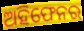
ଅହିଫେନର